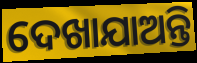
ଦେଖାଯାଅନ୍ତି